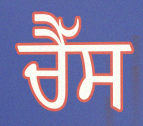
ਚੈੱਸ